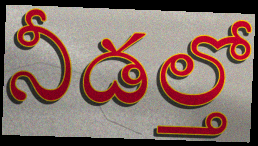
నీడల్తో